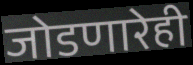
जोडणारेही